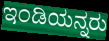
ಇಂಡಿಯನ್ನರು